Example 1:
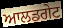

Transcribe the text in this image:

ਆਲਡਗੇਟ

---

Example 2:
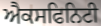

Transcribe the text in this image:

ਐਕਸਫਿਨਿਟੀ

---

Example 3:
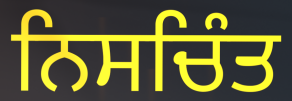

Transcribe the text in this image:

ਨਿਸਚਿੰਤ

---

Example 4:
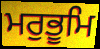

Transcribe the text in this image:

ਮਰੁਭੂਮਿ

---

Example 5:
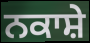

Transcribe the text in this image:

ਨਕਾਸ਼ੇ